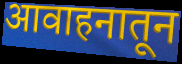
आवाहनातून